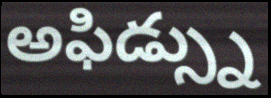
అఫిడ్స్ను